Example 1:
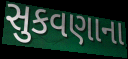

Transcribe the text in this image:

સુકવણાના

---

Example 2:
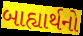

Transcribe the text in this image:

બાહ્યાર્થનો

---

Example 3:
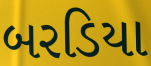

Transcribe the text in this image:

બરડિયા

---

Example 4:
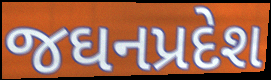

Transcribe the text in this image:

જઘનપ્રદેશ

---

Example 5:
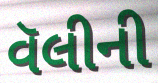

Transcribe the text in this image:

વૅલીની